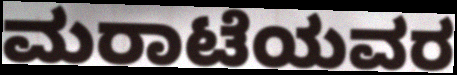
ಮರಾಟೆಯವರ